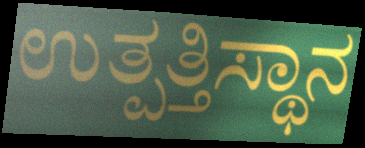
ಉತ್ಪತ್ತಿಸ್ಥಾನ